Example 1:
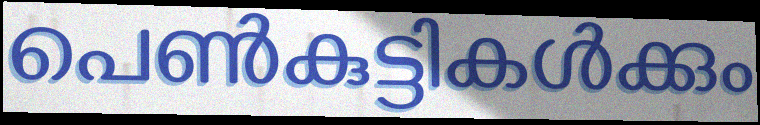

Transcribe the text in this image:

പെൺകുട്ടികൾക്കും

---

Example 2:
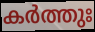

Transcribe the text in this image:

കർത്തുഃ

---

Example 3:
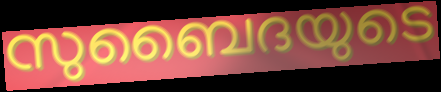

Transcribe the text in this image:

സുബൈദയുടെ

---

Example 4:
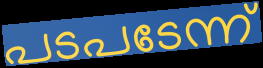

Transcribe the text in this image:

പടപടേന്ന്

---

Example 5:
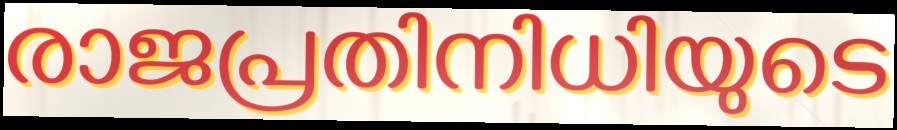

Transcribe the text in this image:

രാജപ്രതിനിധിയുടെ